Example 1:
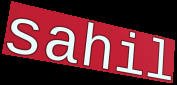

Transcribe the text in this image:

sahil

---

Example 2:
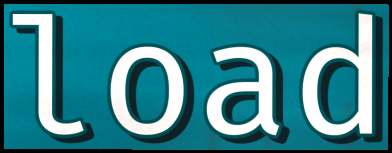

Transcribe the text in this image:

load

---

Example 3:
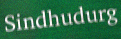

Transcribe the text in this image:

Sindhudurg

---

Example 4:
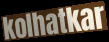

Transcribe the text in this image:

kolhatkar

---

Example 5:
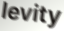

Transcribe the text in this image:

levity